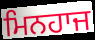
ਮਿਨਹਾਜ